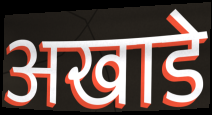
अखाडे